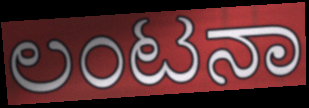
ಲಂಟನಾ